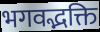
भगवद्भक्ति